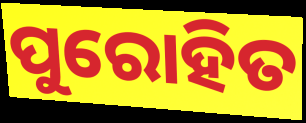
ପୁରୋହିତ